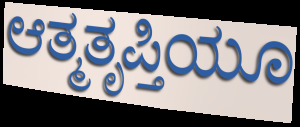
ಆತ್ಮತೃಪ್ತಿಯೂ